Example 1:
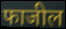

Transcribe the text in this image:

फाजील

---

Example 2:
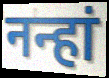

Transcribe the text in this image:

नन्हां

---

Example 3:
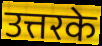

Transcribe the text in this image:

उत्तरके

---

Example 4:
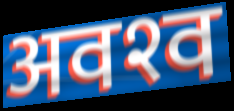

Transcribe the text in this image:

अवश्व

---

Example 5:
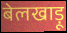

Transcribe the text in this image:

बेलखाड़ू